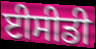
ਈਸੀਡੀ